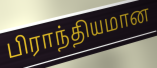
பிராந்தியமான